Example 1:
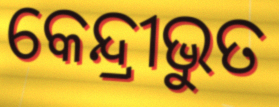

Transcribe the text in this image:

କେନ୍ଦ୍ରୀଭୁତ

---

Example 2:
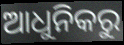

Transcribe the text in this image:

ଆଧୁନିକରୁ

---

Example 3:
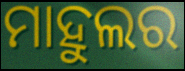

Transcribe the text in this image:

ମାହୁଲର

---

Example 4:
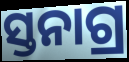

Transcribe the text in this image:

ସ୍ତନାଗ୍ର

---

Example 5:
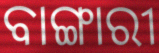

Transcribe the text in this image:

ବାଙ୍ଗାରୀ